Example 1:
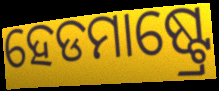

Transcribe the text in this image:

ହେଡମାଷ୍ଟ୍ରେ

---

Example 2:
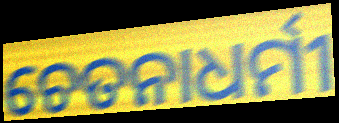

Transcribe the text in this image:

ଚେତନାଧର୍ମୀ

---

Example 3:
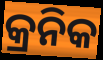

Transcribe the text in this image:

କ୍ରନିକ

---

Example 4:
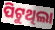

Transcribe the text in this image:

ପିଟୁଥିଲା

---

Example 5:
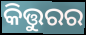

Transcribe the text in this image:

କିତ୍ତୁରର